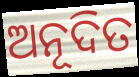
ଅନୂଦିତ